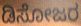
ಡಿಸೋಜರ